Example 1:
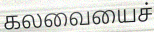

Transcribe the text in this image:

கலவையைச்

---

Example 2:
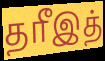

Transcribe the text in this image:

தரீஇத்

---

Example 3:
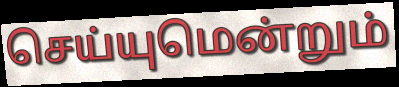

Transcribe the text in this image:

செய்யுமென்றும்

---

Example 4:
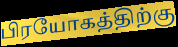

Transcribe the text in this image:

பிரயோகத்திற்கு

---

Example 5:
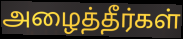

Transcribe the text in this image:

அழைத்தீர்கள்